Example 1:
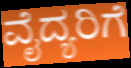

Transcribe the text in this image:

ವೈದ್ಯರಿಗೆ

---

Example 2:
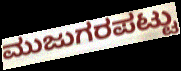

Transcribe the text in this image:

ಮುಜುಗರಪಟ್ಟು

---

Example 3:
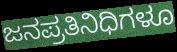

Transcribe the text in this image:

ಜನಪ್ರತಿನಿಧಿಗಳೂ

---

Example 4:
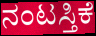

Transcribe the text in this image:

ನಂಟಸ್ತಿಕೆ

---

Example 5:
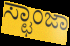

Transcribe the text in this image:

ಸ್ಟಾಂಜಾ